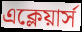
এক্লেয়ার্স